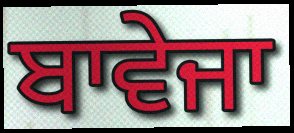
ਬਾਵੇਜਾ